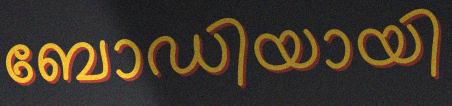
ബോഡിയായി